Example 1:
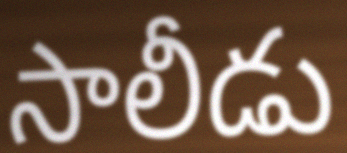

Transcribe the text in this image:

సాలీడు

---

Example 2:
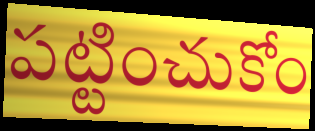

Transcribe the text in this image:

పట్టించుకోం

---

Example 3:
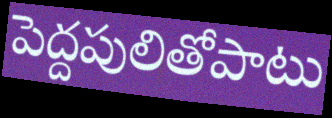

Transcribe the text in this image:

పెద్దపులితోపాటు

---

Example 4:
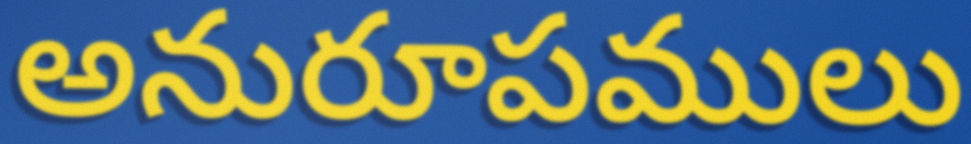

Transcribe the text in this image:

అనురూపములు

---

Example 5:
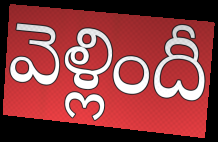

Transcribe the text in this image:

వెళ్లిందీ